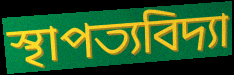
স্থাপত্যবিদ্যা